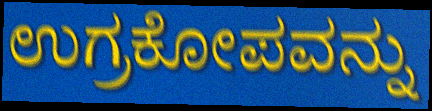
ಉಗ್ರಕೋಪವನ್ನು